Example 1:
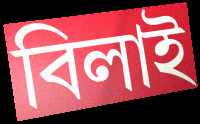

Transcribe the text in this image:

বিলাই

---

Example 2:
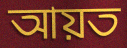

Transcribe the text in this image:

আয়ত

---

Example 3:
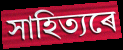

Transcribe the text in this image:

সাহিত্য়ৰে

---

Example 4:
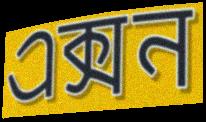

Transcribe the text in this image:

এক্সন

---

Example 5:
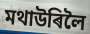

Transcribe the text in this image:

মথাউৰিলৈ